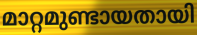
മാറ്റമുണ്ടായതായി